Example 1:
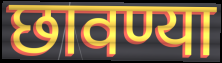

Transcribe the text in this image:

छावण्या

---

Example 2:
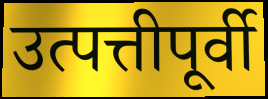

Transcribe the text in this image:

उत्पत्तीपूर्वी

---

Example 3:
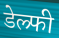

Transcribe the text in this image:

डेल्फी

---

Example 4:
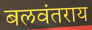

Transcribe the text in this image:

बलवंतराय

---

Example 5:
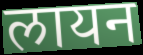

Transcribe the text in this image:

लायन